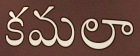
కమలా